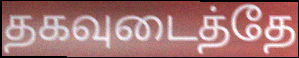
தகவுடைத்தே